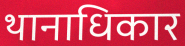
थानाधिकार